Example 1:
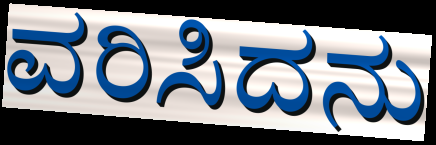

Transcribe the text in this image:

ವರಿಸಿದನು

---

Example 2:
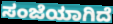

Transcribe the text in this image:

ಸಂಜೆಯಾಗಿದೆ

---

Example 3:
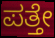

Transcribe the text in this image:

ಪತ್ತೇ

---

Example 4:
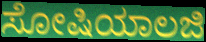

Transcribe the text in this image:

ಸೋಷಿಯಾಲಜಿ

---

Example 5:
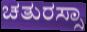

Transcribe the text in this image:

ಚತುರಸ್ಸಾ